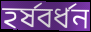
হর্ষবর্ধন